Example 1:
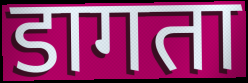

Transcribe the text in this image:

डागता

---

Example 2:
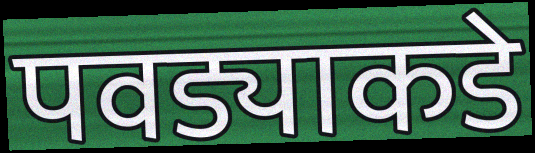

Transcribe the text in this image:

पवड्याकडे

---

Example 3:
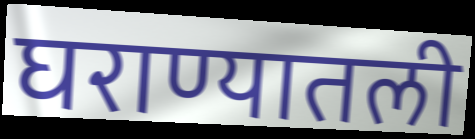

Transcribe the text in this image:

घराण्यातली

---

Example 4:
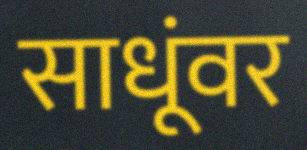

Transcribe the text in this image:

साधूंवर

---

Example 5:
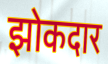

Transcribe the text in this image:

झोकदार